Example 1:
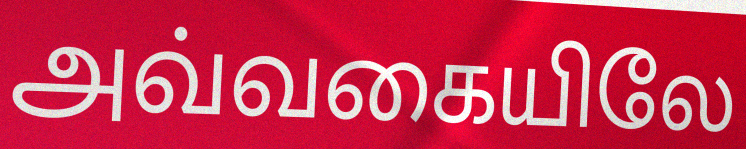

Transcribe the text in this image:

அவ்வகையிலே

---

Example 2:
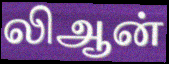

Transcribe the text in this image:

லிஆன்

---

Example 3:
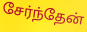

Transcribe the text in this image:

சேர்ந்தேன்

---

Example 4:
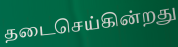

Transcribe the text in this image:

தடைசெய்கின்றது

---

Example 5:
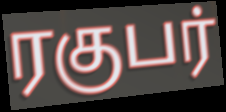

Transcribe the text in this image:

ரகுபர்